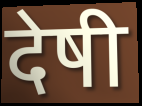
देषी